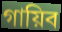
গায়িব